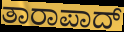
ತಾರಾಪಾದ್